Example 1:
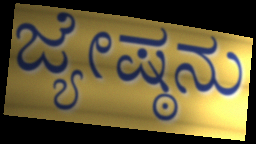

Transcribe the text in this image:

ಜ್ಯೇಷ್ಠನು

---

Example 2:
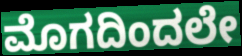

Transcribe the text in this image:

ಮೊಗದಿಂದಲೇ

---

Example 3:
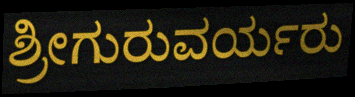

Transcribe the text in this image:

ಶ್ರೀಗುರುವರ್ಯರು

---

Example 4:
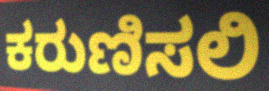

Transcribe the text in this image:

ಕರುಣಿಸಲಿ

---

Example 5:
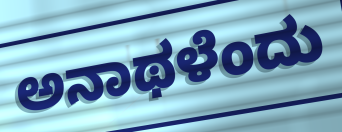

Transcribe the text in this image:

ಅನಾಥಳೆಂದು